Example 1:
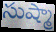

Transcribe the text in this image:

సుష్మా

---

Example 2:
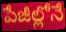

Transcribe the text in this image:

పేజీల్లోనే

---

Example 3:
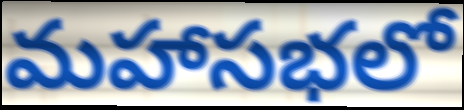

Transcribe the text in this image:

మహాసభలో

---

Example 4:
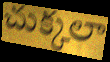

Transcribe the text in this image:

చుక్కలా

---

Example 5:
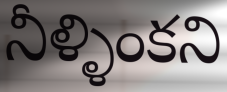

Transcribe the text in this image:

నీళ్ళింకని